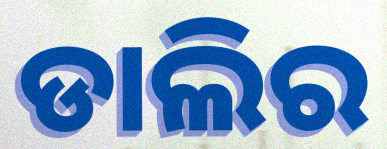
ଡାଲିର